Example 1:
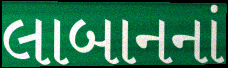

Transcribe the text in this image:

લાબાનનાં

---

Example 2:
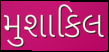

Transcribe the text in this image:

મુશાકિલ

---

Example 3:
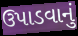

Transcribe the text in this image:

ઉપાડવાનું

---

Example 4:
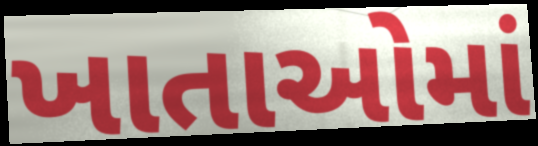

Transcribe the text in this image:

ખાતાઓમાં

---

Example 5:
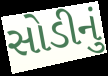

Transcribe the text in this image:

સોડીનું